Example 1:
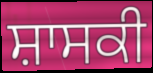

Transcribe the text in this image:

ਸ਼ਾਸਕੀ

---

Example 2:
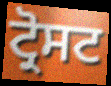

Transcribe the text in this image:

ਟ੍ਰੋਸਟ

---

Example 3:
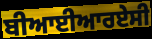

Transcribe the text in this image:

ਬੀਆਈਆਰਏਸੀ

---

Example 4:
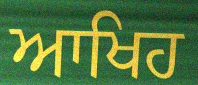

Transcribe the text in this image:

ਆਖਿਹ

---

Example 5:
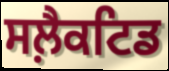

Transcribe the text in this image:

ਸਲ਼ੈਕਟਿਡ